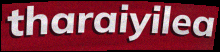
tharaiyilea